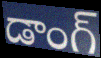
డాంగ్